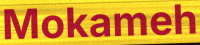
Mokameh